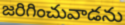
జరిగించువాడను